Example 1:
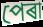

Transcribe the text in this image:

পেৰা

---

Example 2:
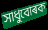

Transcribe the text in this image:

সাধুবোৰক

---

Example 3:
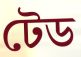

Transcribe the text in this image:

টেড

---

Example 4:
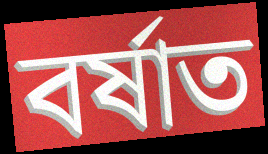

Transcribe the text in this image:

বৰ্ষাত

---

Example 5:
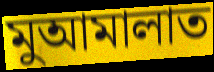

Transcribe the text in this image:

মুআমালাত